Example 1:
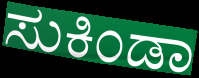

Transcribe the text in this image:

ಸುಕಿಂಡಾ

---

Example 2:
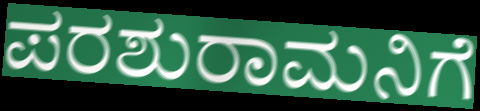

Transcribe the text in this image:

ಪರಶುರಾಮನಿಗೆ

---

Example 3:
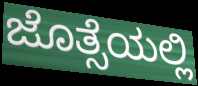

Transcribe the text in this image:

ಜೊತ್ಸೆಯಲ್ಲಿ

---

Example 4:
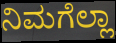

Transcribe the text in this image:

ನಿಮಗೆಲ್ಲಾ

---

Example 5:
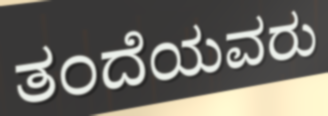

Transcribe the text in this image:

ತಂದೆಯವರು